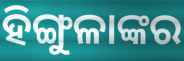
ହିଙ୍ଗୁଳାଙ୍କର